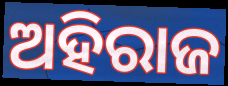
ଅହିରାଜ